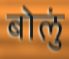
बोलुं